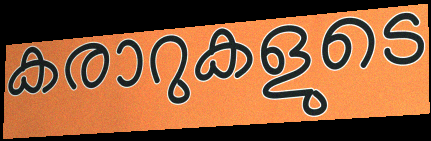
കരാറുകളുടെ